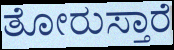
ತೋರುಸ್ತಾರೆ